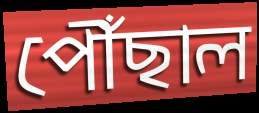
পৌঁছাল